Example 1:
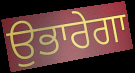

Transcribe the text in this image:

ਉਭਾਰੇਗਾ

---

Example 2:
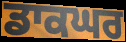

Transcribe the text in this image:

ਡਾਕਘਰ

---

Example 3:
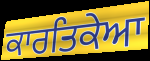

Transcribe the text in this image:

ਕਾਰਤਿਕੇਆ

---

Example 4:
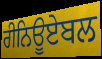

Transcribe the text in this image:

ਰੀਨਿਊਏਬਲ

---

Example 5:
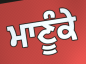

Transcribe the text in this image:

ਮਾਣੂੰਕੇ